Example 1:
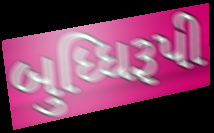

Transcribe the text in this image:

બુધ્ધિરૂપી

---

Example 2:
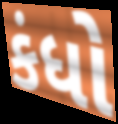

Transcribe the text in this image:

કંધો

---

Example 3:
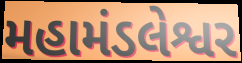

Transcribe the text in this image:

મહામંડલેશ્વર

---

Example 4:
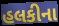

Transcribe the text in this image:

હલકીના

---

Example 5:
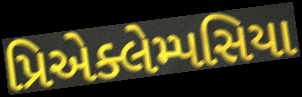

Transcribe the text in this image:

પ્રિએક્લેમ્પસિયા